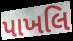
પાખલિ